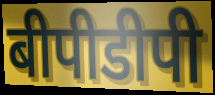
बीपीडीपी